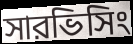
সারভিসিং